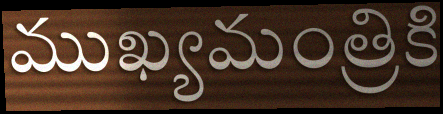
ముఖ్యమంత్రికి